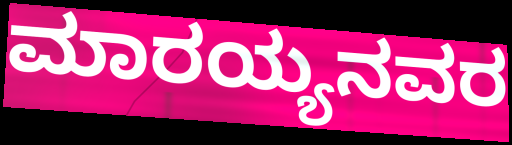
ಮಾರಯ್ಯನವರ